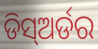
ଡିସ୍ଅର୍ଡର